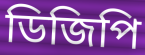
ডিজিপি